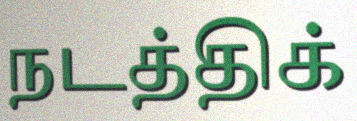
நடத்திக்